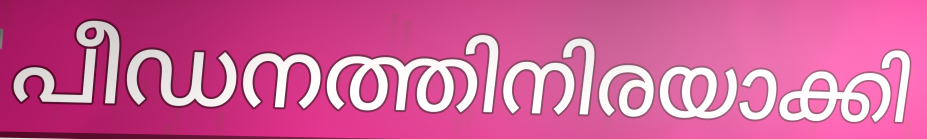
പീഡനത്തിനിരയാക്കി